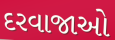
દરવાજાઓ